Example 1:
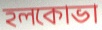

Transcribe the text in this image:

হলকোভা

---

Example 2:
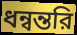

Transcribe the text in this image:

ধন্বন্তরি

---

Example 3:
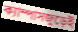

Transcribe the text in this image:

ক্যাম্পাসজুড়েই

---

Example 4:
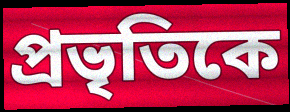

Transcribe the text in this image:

প্রভৃতিকে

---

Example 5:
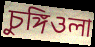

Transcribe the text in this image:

চুঙ্গিওলা